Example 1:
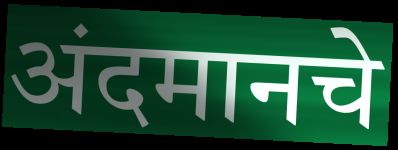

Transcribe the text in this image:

अंदमानचे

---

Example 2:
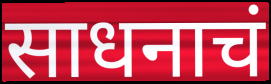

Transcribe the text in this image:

साधनाचं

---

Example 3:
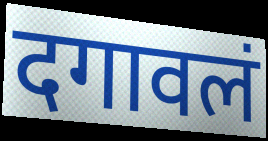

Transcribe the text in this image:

दगावलं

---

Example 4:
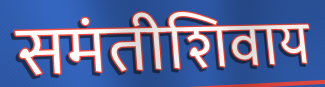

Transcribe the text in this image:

समंतीशिवाय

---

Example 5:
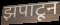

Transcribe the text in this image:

झपाटून